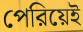
পেরিয়েই